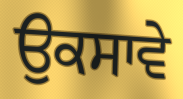
ਉਕਸਾਵੇ